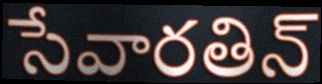
సేవారతిన్